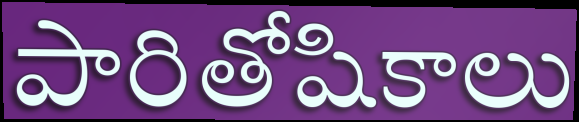
పారితోషికాలు